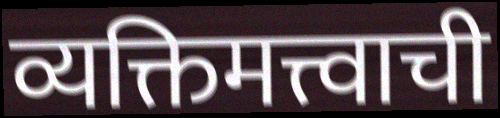
व्यक्तिमत्त्वाची